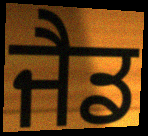
ਜੈਡ